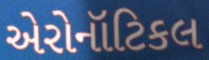
એરોનૉટિકલ